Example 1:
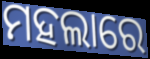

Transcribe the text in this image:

ମହଲାରେ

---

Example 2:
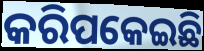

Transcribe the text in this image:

କରିପକେଇଛି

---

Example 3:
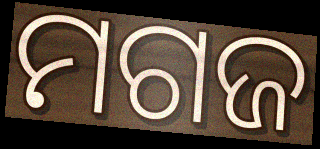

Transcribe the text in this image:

ମଗଜ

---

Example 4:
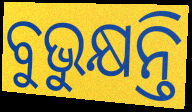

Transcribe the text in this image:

ବୁଭୁକ୍ଷନ୍ତି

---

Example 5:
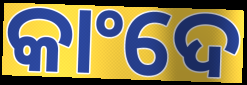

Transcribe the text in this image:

କାଂଦେ